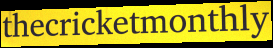
thecricketmonthly